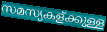
സമസ്യകള്ക്കുള്ള